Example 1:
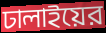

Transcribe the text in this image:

ঢালাইয়ের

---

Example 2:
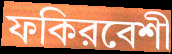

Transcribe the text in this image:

ফকিরবেশী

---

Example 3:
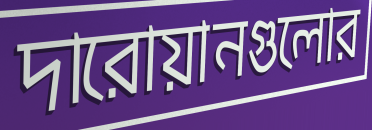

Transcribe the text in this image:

দারোয়ানগুলোর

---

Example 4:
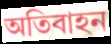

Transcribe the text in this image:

অতিবাহন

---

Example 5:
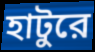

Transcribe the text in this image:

হাটুরে